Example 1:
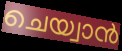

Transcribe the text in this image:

ചെയ്വാൻ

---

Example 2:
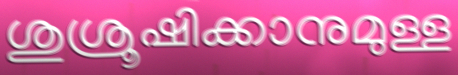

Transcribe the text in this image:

ശുശ്രൂഷിക്കാനുമുള്ള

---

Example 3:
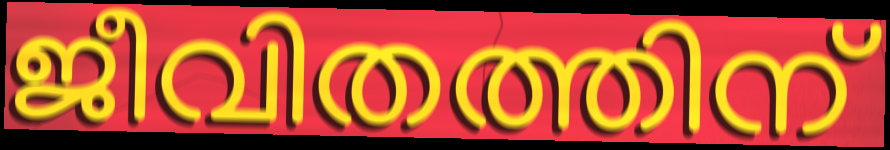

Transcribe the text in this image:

ജീവിതത്തിന്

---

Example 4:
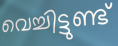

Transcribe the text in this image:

വെച്ചിട്ടുണ്ട്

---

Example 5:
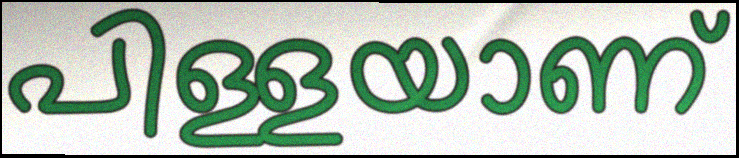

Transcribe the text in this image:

പിള്ളയാണ്